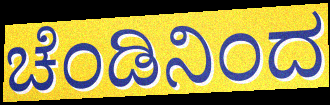
ಚೆಂಡಿನಿಂದ